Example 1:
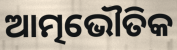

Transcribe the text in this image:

ଆତ୍ମଭୌତିକ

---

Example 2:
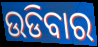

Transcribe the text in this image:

ଉଡିବାର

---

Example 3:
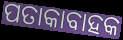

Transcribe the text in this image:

ପତାକାବାହକ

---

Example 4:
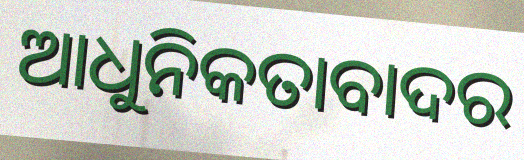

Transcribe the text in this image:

ଆଧୁନିକତାବାଦର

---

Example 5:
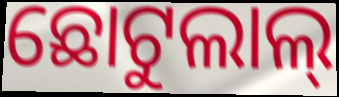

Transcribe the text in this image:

ଛୋଟୁଲାଲ୍